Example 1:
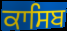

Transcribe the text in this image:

ਕਾਸਿਬ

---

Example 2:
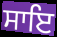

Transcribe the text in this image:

ਸਾਇ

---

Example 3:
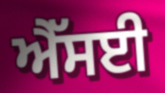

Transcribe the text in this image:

ਐੱਸਈ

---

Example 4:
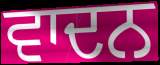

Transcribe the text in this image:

ਵਾਦਨ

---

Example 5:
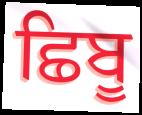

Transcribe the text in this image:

ਛਿਬੂ